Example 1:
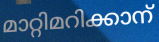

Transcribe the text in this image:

മാറ്റിമറിക്കാന്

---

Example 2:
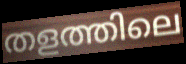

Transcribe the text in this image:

തളത്തിലെ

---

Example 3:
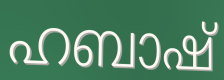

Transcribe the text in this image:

ഹബാഷ്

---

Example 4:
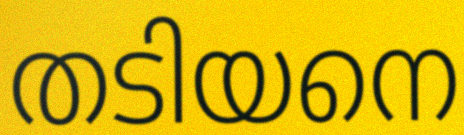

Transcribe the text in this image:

തടിയനെ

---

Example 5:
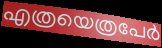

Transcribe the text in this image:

എത്രയെത്രപേർ